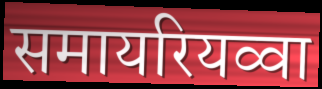
समायरियव्वा